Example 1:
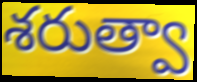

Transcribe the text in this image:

శరుత్వా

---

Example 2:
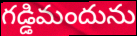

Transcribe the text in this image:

గడ్డిమందును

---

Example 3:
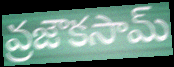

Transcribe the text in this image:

వ్రజౌకసామ్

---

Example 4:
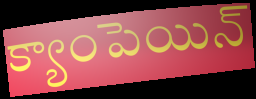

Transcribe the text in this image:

క్యాంపెయిన్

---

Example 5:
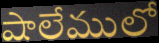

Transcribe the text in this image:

షాలేములో